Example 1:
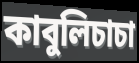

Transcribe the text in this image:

কাবুলিচাচা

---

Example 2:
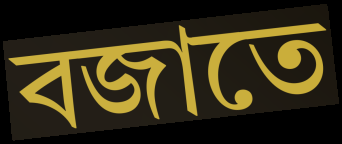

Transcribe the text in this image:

বজাতে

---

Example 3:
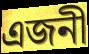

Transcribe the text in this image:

এজনী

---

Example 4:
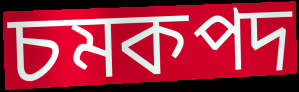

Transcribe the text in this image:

চমকপদ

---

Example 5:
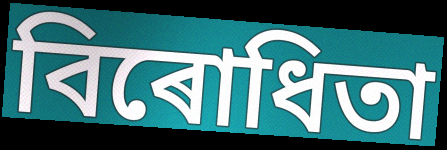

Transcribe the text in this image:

বিৰোধিতা